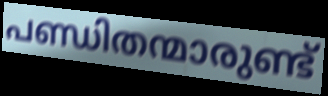
പണ്ഡിതന്മാരുണ്ട്